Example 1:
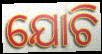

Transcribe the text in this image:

ଯୋଚି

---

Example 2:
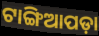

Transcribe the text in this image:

ଟାଙ୍ଗିଆପଡ଼ା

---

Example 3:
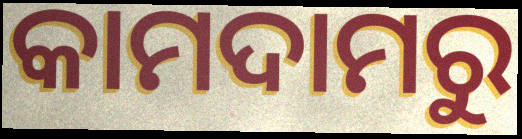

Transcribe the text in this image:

କାମଦାମରୁ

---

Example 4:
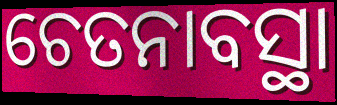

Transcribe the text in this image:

ଚେତନାବସ୍ଥା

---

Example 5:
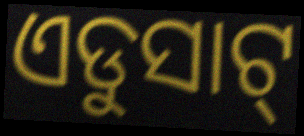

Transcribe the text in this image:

ଏଡୁସାଟ୍